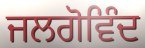
ਜਲਗੋਵਿੰਦ